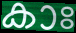
കാഃ